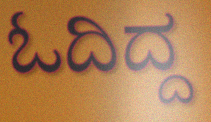
ಓದಿದ್ದ